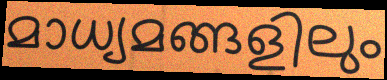
മാധ്യമങ്ങളിലും